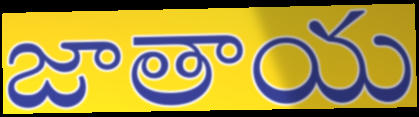
జాతాయ